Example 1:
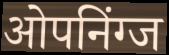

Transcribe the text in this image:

ओपनिंग्ज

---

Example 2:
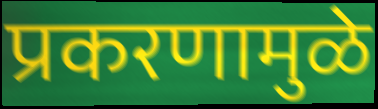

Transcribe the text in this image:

प्रकरणामुळे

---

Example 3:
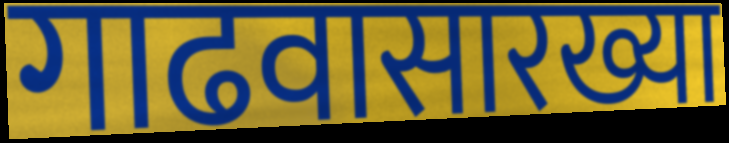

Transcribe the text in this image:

गाढवासारख्या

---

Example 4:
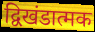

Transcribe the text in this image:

द्विखंडात्मक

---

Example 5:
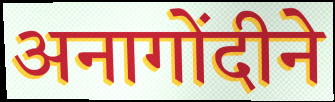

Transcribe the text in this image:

अनागोंदीने